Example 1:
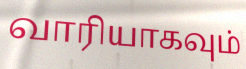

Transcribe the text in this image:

வாரியாகவும்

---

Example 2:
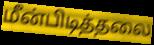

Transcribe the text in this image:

மீன்பிடித்தலை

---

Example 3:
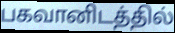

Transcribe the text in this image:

பகவானிடத்தில்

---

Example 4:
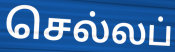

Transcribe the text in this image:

செல்லப்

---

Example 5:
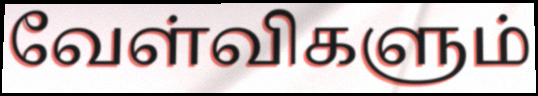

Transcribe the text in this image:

வேள்விகளும்